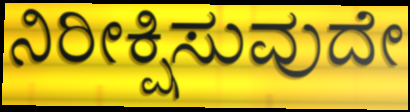
ನಿರೀಕ್ಷಿಸುವುದೇ